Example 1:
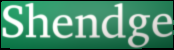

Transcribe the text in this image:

Shendge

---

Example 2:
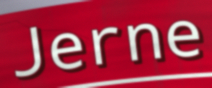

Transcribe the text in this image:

Jerne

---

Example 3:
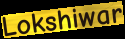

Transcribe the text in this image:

Lokshiwar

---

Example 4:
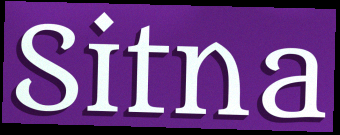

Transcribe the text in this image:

Sitna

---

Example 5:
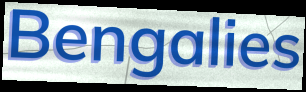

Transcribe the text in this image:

Bengalies